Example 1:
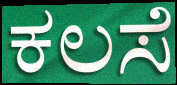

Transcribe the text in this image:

ಕಲಸೆ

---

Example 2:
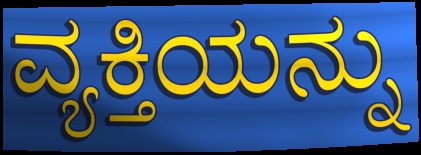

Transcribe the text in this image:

ವ್ಯಕ್ತಿಯನ್ನು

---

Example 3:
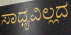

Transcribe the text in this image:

ಸಾಧ್ಯವಿಲ್ಲದ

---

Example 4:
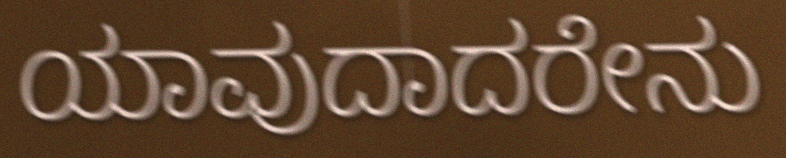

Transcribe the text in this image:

ಯಾವುದಾದರೇನು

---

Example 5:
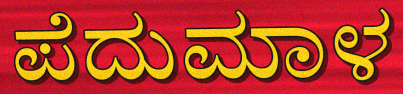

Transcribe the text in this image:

ಪೆದುಮಾಳ